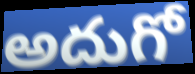
అదుగో